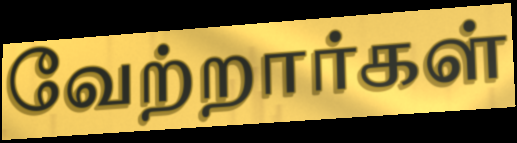
வேற்றார்கள்